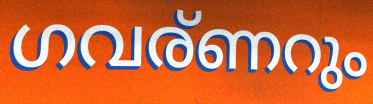
ഗവര്ണറും